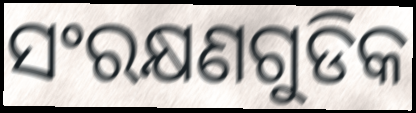
ସଂରକ୍ଷଣଗୁଡିକ